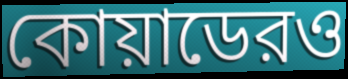
কোয়াডেরও